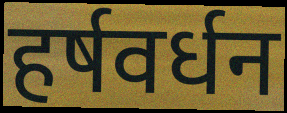
हर्षवर्धन